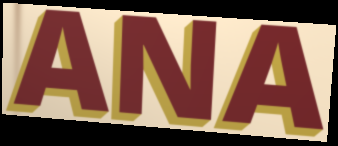
ANA